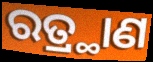
ରତ୍ର୍ଥାଣ